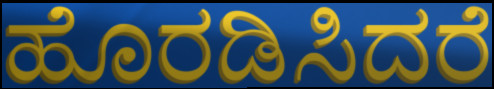
ಹೊರಡಿಸಿದರೆ